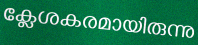
ക്ലേശകരമായിരുന്നു